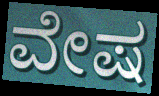
ವೇಷ